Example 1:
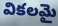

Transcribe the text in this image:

వికలమై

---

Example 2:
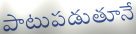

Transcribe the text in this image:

పాటుపడుతూనే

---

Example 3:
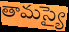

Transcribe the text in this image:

తామస్యై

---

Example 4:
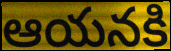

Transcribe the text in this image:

ఆయనకి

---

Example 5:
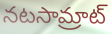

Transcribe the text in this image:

నటసామ్రాట్